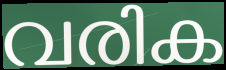
വരിക